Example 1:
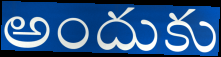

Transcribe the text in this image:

అందుకు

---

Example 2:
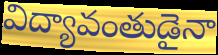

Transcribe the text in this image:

విద్యావంతుడైనా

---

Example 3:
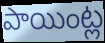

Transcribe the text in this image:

పాయింట్ల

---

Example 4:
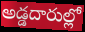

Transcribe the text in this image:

అడ్డదారుల్లో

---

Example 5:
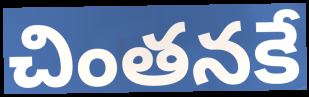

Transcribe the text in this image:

చింతనకే